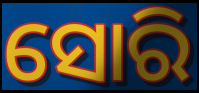
ସୋରି